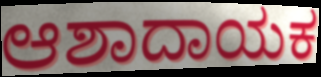
ಆಶಾದಾಯಕ